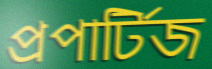
প্রপার্টিজ